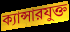
ক্যান্সারযুক্ত